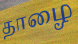
தாழை